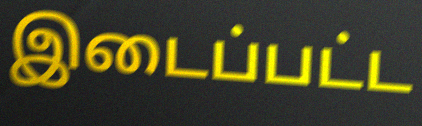
இடைப்பட்ட